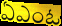
ఏఎంఓ